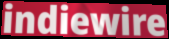
indiewire